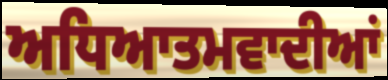
ਅਧਿਆਤਮਵਾਦੀਆਂ